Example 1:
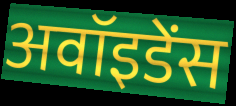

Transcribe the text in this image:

अवॉइडेंस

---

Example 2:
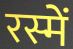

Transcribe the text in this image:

रस्‍में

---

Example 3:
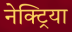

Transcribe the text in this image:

नेक्ट्रिया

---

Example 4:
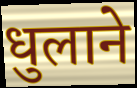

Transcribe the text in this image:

धुलाने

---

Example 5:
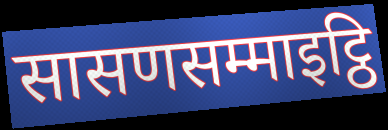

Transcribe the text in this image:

सासणसम्माइट्ठि